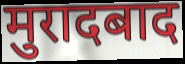
मुरादबाद